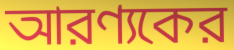
আরণ্যকের